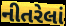
નીતરેલાં